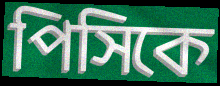
পিসিকে